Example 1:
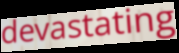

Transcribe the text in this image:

devastating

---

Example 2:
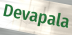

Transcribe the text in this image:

Devapala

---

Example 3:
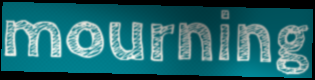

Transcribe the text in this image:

mourning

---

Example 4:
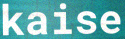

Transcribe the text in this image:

kaise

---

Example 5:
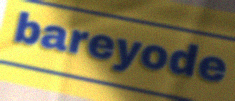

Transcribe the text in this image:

bareyode